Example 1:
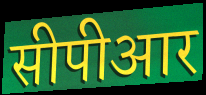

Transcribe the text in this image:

सीपीआर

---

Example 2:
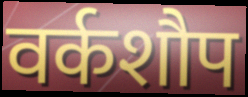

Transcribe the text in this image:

वर्कशौप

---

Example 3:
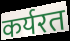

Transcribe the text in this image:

कर्यरत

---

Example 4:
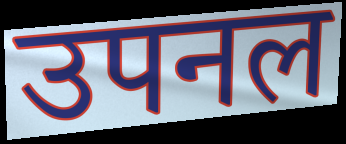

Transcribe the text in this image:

उपनल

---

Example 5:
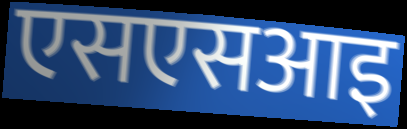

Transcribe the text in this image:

एसएसआइ